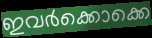
ഇവർക്കൊക്കെ